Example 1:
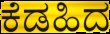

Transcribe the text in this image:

ಕೆಡಹಿದ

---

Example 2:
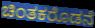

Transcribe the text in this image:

ಚಿಂತಕರೊಡನೆ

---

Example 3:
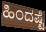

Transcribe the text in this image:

ಹಿಂದಷ್ಟೆ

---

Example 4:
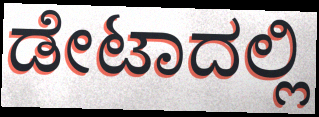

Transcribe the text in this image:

ಡೇಟಾದಲ್ಲಿ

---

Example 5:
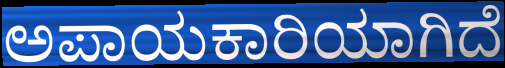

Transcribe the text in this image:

ಅಪಾಯಕಾರಿಯಾಗಿದೆ